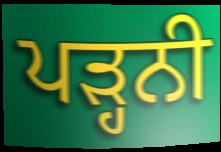
ਪੜ੍ਹਨੀ